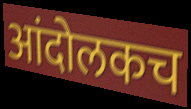
आंदोलकच